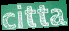
citta